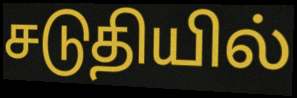
சடுதியில்